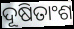
ଦୂଷିତାଂଶ